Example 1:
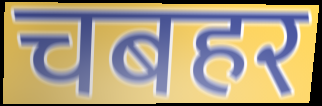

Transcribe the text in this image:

चबहर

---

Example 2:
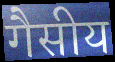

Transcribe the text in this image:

गैसीय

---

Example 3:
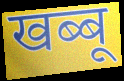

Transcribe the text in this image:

खब्बू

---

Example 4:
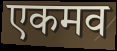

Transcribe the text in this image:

एकमव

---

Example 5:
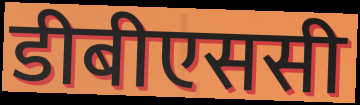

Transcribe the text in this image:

डीबीएससी